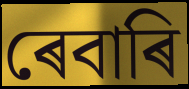
ৰেবাৰি